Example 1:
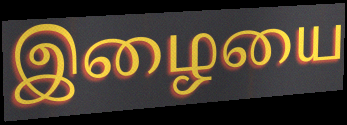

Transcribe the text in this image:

இழையை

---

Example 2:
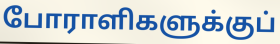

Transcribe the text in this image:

போராளிகளுக்குப்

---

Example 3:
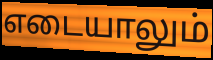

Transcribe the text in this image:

எடையாலும்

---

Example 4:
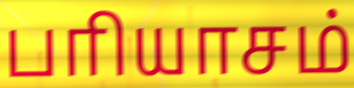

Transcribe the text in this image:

பரியாசம்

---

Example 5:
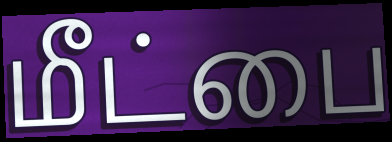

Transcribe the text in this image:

மீட்பை